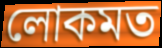
লোকমত